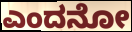
ಎಂದನೋ